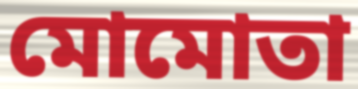
মোমোতা